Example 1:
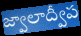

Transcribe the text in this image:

జ్వాలాద్వీప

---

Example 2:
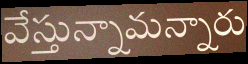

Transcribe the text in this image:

వేస్తున్నామన్నారు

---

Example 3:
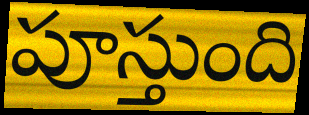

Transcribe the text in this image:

పూస్తుంది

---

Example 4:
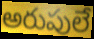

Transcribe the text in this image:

అరుపులే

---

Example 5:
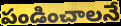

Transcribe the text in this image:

పండించాలనే